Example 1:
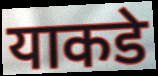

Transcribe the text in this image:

याकडे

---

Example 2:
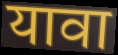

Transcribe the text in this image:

यावा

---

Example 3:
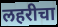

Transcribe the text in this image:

लहरीचा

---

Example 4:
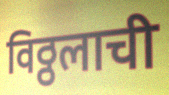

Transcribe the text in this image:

विठ्ठलाची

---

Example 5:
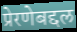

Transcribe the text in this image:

प्रेरणेबद्दल